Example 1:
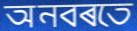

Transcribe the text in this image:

অনবৰতে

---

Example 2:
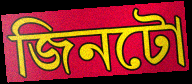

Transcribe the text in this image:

জিনটো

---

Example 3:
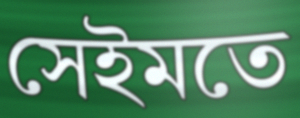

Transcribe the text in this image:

সেইমতে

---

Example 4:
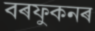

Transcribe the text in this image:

বৰফুকনৰ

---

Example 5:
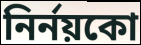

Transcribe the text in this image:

নিৰ্নয়কো